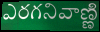
ఎరగనివాణ్ణి